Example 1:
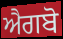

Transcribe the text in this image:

ਐਗਬੋ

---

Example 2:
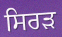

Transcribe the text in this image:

ਸਿਰੜ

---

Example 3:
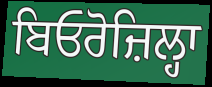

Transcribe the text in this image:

ਬਿਓਰੋਜ਼ਿਲ੍ਹਾ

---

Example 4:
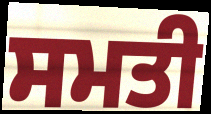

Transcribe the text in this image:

ਸਮਤੀ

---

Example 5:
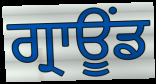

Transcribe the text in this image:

ਗ੍ਰਾਊਂਡ